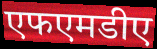
एफएमडीए